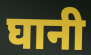
घानी